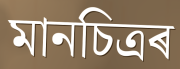
মানচিত্ৰৰ